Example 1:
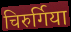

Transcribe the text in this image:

चिरुर्गिया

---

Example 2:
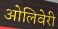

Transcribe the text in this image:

ओलिवेरी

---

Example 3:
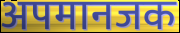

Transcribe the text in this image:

अपमानजक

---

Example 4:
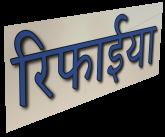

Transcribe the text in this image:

रिफाईया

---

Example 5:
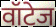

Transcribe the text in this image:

वॉटेज